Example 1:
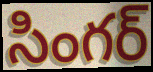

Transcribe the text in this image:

సింగర్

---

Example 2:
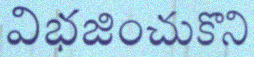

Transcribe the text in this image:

విభజించుకొని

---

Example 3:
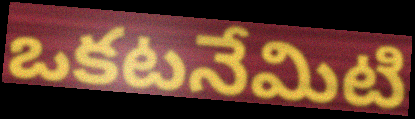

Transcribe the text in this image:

ఒకటనేమిటి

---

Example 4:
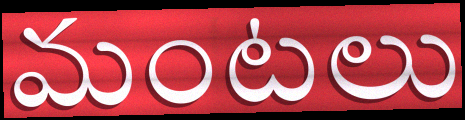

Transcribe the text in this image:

మంటలు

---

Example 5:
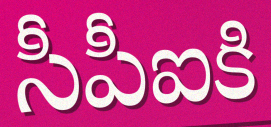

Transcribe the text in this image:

సీపీఐకి